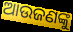
ଆଉଜଣଙ୍କୁ